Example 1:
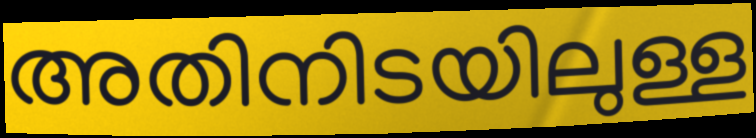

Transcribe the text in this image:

അതിനിടയിലുള്ള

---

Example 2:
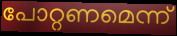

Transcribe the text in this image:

പോറ്റണമെന്ന്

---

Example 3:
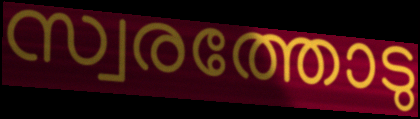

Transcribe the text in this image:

സ്വരത്തോടു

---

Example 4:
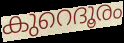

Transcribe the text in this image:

കുറെദൂരം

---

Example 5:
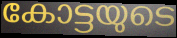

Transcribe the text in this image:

കോട്ടയുടെ